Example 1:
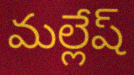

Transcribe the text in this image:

మల్లేష్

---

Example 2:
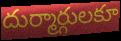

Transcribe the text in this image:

దుర్మార్గులకూ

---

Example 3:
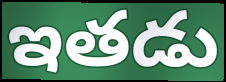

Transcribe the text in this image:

ఇతడు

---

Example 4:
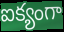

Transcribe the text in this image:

ఐక్యంగా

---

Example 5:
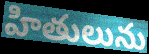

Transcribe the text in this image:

హితులును